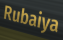
Rubaiya